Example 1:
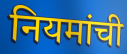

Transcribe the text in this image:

नियमांची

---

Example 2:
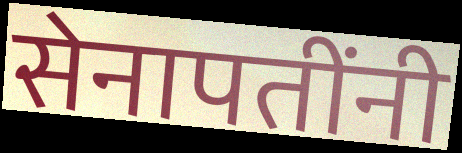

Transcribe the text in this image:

सेनापतींनी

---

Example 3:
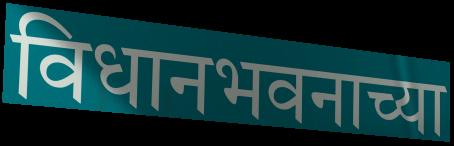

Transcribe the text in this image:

विधानभवनाच्या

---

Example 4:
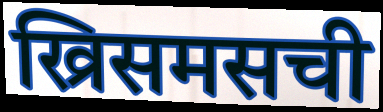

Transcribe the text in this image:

ख्रिसमसची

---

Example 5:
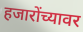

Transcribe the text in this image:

हजारोंच्यावर